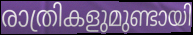
രാത്രികളുമുണ്ടായി